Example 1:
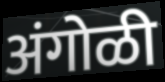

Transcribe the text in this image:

अंगोळी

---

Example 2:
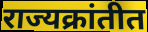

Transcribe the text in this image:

राज्यक्रांतीत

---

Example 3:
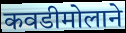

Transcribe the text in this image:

कवडीमोलाने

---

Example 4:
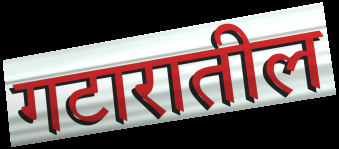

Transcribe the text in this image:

गटारातील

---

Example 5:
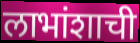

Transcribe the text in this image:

लाभांशाची